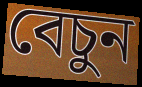
বেচুন